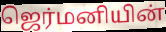
ஜெர்மனியின்